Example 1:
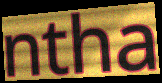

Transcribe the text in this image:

ntha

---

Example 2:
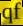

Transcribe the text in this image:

qf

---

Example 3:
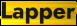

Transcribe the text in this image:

Lapper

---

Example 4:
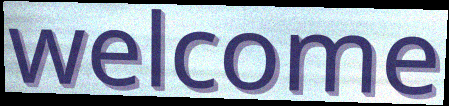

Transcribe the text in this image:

welcome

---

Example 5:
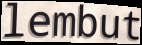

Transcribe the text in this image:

lembut